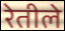
रेतीले